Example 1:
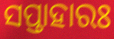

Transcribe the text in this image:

ସପ୍ତାହାରଃ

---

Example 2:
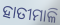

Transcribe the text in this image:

ହାତୀମାଳି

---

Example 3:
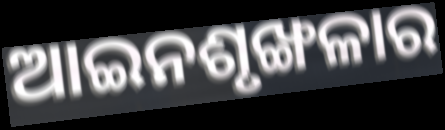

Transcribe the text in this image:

ଆଇନଶୃଙ୍ଖଳାର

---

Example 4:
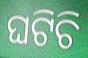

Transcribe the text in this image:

ଘଟିଚି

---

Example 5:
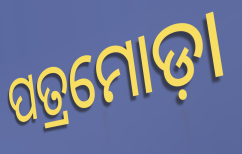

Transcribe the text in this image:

ପତ୍ରମୋଡ଼ା